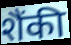
शैंकी